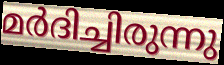
മർദിച്ചിരുന്നു